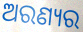
ଅରଣ୍ୟର